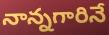
నాన్నగారినే